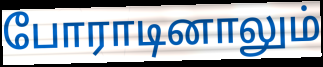
போராடினாலும்